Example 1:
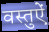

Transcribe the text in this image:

वस्तुऐं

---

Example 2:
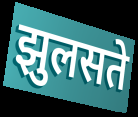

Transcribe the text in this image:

झुलसते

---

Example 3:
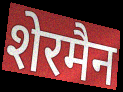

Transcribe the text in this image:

शेरमैन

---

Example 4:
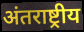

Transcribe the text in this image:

अंतराष्ट्रीय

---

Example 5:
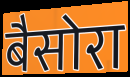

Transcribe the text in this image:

बैसोरा